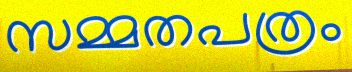
സമ്മതപത്രം